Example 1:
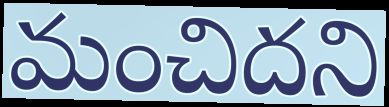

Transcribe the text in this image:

మంచిదని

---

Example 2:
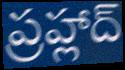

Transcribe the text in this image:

ప్రహ్లాద్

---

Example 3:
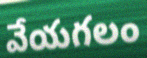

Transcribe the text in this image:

వేయగలం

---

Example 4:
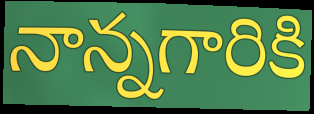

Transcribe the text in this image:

నాన్నగారికి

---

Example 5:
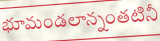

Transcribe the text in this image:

భూమండలాన్నంతటినీ